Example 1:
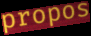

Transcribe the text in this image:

propos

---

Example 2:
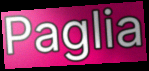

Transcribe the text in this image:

Paglia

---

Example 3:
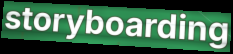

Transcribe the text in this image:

storyboarding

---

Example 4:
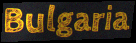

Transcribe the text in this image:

Bulgaria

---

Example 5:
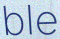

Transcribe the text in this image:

ble